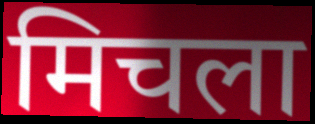
मिचला